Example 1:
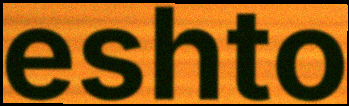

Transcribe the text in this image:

eshto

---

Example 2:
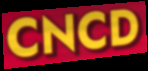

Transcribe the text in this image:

CNCD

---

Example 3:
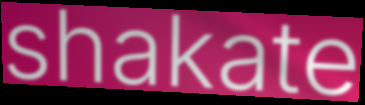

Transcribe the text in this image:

shakate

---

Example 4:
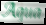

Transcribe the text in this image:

Aqua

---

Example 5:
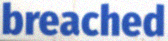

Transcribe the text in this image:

breached